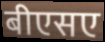
बीएसए